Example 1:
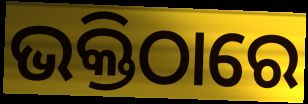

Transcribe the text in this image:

ଭକ୍ତିଠାରେ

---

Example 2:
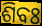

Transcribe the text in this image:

ଶିବଃ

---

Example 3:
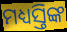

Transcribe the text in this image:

ମଧ୍ୟସ୍ତିଙ୍କ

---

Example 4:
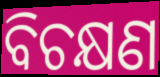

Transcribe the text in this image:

ବିଚକ୍ଷଣ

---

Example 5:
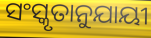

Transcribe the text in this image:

ସଂସ୍କୃତାନୁଯାୟୀ